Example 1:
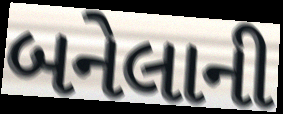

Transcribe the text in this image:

બનેલાની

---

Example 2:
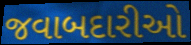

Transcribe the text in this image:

જવાબદારીઓ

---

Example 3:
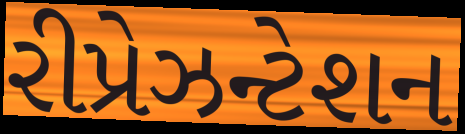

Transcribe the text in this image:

રીપ્રેઝન્ટેશન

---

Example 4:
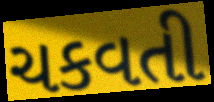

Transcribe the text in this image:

ચકવતી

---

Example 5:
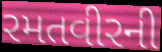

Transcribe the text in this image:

રમતવીરની